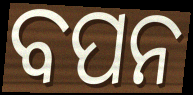
ବପନ